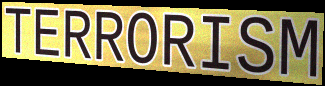
TERRORISM